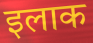
इलाक